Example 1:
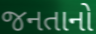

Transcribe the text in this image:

જનતાનો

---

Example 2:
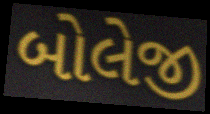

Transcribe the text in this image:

બોલેજી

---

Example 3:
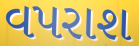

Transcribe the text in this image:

વપરાશ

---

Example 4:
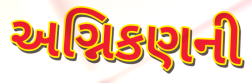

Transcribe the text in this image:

અગ્નિકણની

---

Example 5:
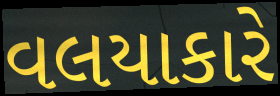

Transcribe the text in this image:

વલયાકારે